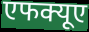
एफक्यूए